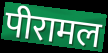
पीरामल